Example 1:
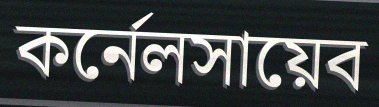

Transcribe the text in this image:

কর্নেলসায়েব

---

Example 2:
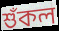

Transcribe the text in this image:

শুঁকল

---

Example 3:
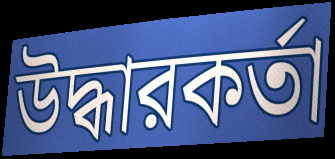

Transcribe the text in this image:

উদ্ধারকর্তা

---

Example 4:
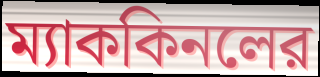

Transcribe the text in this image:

ম্যাককিনলের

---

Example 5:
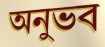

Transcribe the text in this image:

অনুভব